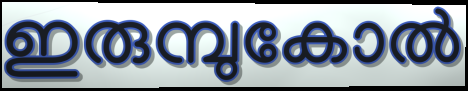
ഇരുമ്പുകോൽ